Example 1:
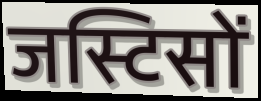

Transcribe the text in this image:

जस्टिसों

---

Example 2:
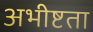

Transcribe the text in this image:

अभीष्टता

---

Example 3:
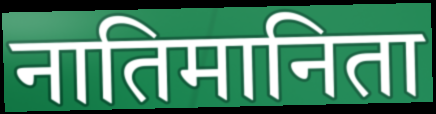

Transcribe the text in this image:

नातिमानिता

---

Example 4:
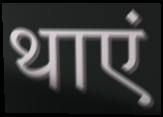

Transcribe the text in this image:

थाएं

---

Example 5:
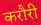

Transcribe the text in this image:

करौरी